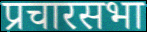
प्रचारसभा